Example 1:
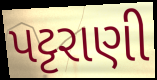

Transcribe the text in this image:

પટ્ટરાણી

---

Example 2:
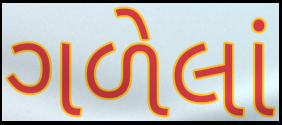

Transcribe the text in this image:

ગળેલાં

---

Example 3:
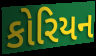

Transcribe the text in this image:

કોરિયન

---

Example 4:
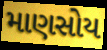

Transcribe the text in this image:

માણસોય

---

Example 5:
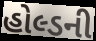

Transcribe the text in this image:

હોલ્ડની